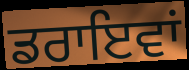
ਡਰਾਇਵਾਂ